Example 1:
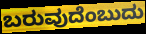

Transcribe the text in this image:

ಬರುವುದೆಂಬುದು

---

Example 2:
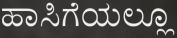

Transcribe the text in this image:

ಹಾಸಿಗೆಯಲ್ಲೂ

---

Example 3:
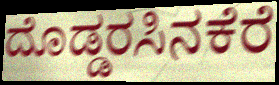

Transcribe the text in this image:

ದೊಡ್ಡರಸಿನಕೆರೆ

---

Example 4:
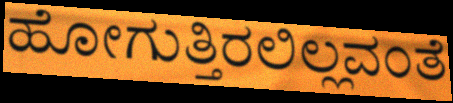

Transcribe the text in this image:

ಹೋಗುತ್ತಿರಲಿಲ್ಲವಂತೆ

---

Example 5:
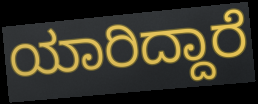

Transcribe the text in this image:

ಯಾರಿದ್ದಾರೆ